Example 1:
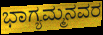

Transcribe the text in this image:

ಭಾಗ್ಯಮ್ಮನವರ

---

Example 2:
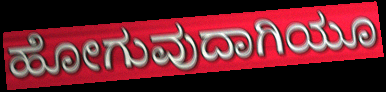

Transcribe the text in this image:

ಹೋಗುವುದಾಗಿಯೂ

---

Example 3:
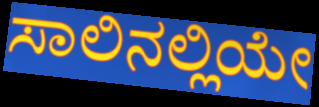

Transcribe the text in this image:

ಸಾಲಿನಲ್ಲಿಯೇ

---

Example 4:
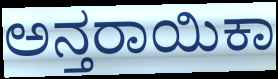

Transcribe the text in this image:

ಅನ್ತರಾಯಿಕಾ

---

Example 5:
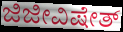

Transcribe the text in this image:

ಜಿಜೀವಿಷೇತ್